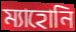
ম্যাহোনি